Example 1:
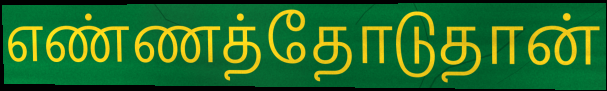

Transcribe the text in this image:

எண்ணத்தோடுதான்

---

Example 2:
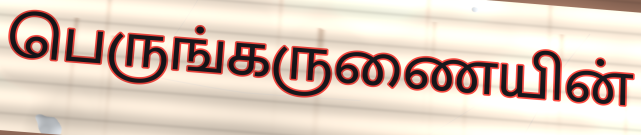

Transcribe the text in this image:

பெருங்கருணையின்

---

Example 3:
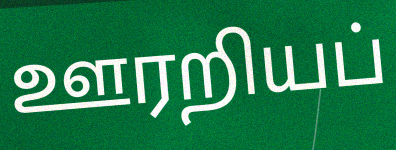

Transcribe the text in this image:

ஊரறியப்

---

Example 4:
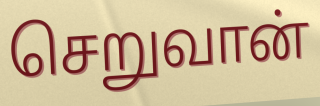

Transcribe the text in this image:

செறுவான்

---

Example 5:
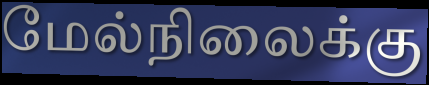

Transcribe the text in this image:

மேல்நிலைக்கு